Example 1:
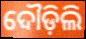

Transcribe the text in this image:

ଦୌଡ଼ିଲି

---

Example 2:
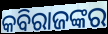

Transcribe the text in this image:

କବିରାଜଙ୍କର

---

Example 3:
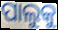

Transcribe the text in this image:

ପାଲୁକୁ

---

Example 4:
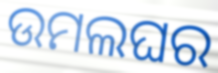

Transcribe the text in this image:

ଉମଲଘର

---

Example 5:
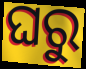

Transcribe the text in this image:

ଘରୁ